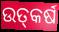
ଉତ୍‌କର୍ଷ